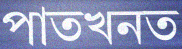
পাতখনত